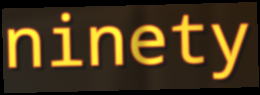
ninety